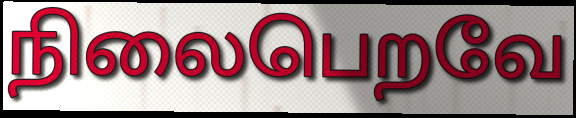
நிலைபெறவே